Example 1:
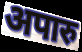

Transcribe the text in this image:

अपारु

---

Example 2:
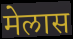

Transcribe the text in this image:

मेलास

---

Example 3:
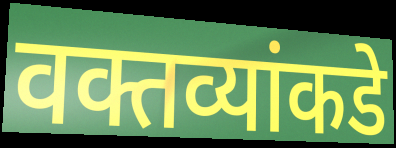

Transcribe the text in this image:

वक्तव्यांकडे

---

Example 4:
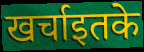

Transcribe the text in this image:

खर्चाइतके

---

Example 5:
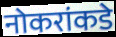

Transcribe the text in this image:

नोकरांकडे